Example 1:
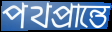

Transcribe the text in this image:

পথপ্রান্তে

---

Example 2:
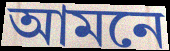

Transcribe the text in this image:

আমনে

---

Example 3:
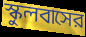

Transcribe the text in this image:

স্কুলবাসের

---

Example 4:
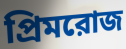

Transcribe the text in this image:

প্রিমরোজ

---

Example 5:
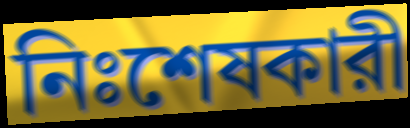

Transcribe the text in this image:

নিঃশেষকারী